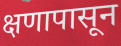
क्षणापासून